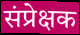
संप्रेक्षक